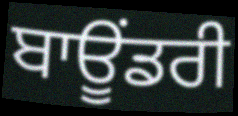
ਬਾਊਂਡਰੀ